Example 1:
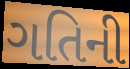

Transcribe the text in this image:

ગતિની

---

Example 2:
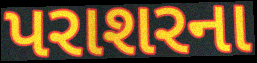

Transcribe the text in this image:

પરાશરના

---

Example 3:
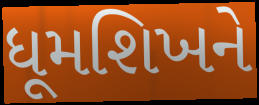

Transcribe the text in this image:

ધૂમશિખને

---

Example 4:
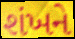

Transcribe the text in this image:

શંખને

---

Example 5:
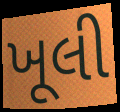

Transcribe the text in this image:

ખૂલી